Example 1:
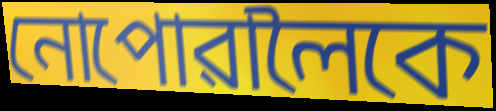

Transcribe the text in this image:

নোপোৱালৈকে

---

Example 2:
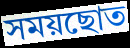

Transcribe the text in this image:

সময়ছোত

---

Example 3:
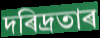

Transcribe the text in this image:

দৰিদ্ৰতাৰ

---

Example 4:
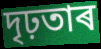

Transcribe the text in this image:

দৃঢ়তাৰ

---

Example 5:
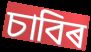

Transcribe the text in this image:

চাবিৰ